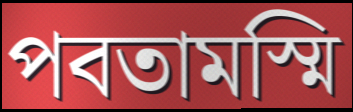
পবতামস্মি